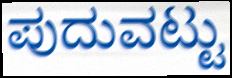
ಪುದುವಟ್ಟು